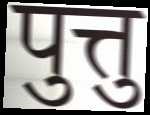
पुत्तु